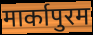
मार्कापुरम